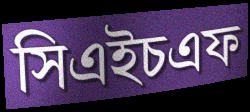
সিএইচএফ